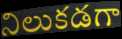
నిలుకడగా